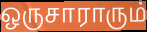
ஒருசாராரும்